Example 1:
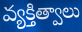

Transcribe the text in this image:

వ్యక్తిత్వాలు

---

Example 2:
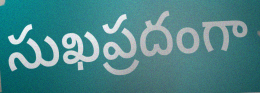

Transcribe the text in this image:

సుఖప్రదంగా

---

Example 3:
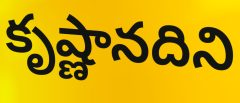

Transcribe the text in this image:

కృష్ణానదిని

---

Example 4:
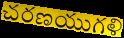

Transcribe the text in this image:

చరణయుగళి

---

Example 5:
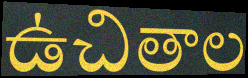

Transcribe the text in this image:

ఉచితాల